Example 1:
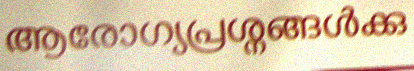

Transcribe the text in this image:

ആരോഗ്യപ്രശ്നങ്ങൾക്കു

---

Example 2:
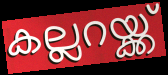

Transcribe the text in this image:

കല്ലറയ്ക്ക്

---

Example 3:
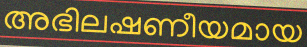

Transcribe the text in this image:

അഭിലഷണീയമായ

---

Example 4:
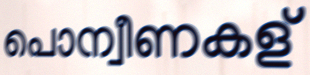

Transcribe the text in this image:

പൊന്വീണകള്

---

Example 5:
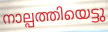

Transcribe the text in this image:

നാല്പത്തിയെട്ടു